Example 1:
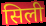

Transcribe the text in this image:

सिली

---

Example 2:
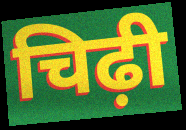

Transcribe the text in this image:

चिढ़ी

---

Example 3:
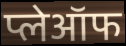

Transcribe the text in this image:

प्लेऑफ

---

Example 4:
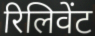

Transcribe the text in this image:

रिलिवेंट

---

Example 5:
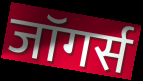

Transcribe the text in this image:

जॉगर्स